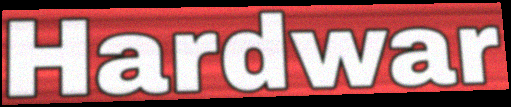
Hardwar